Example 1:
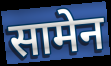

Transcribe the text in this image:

सामेन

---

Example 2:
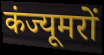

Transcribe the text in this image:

कंज्यूमरों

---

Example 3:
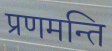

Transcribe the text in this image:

प्रणमन्ति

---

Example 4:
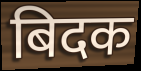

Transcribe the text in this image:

बिदक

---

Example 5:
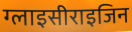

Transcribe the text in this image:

ग्लाइसीराइजिन